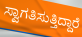
ಸ್ವಾಗತಿಸುತ್ತಿದ್ದಾರೆ